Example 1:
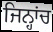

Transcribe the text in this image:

ਜਿਨ੍ਹਾਂਚ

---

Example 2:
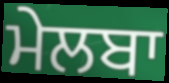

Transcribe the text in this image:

ਮੇਲਬਾ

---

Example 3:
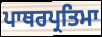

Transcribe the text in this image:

ਪਾਥਰਪ੍ਰਤਿਮਾ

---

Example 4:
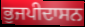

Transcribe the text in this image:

ਭੁਜਪੀਦਾਸਨ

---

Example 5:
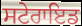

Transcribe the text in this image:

ਸਟੇਰਾਇਡ